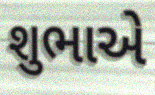
શુભાએ